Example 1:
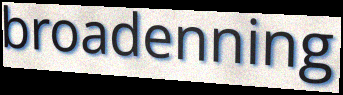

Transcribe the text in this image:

broadenning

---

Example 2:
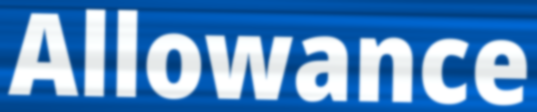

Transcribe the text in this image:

Allowance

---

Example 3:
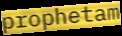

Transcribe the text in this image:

prophetam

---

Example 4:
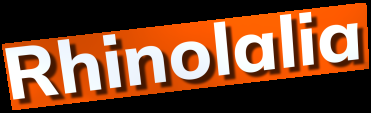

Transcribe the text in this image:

Rhinolalia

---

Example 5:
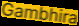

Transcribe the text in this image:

Gambhira